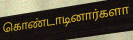
கொண்டாடினார்களா